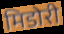
मिडोरी